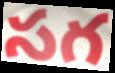
సగ